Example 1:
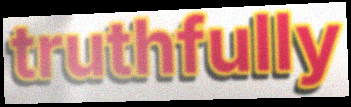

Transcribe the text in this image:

truthfully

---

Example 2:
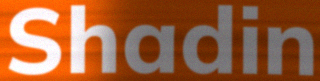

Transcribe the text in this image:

Shadin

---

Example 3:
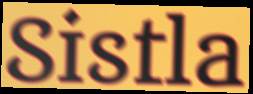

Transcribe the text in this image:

Sistla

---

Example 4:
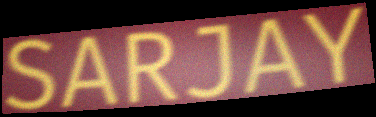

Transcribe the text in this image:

SARJAY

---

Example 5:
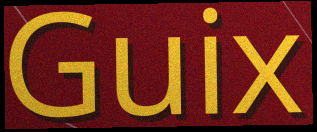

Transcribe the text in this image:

Guix